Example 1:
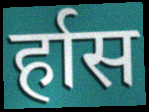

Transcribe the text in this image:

र्हास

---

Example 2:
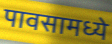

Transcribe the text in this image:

पावसामध्ये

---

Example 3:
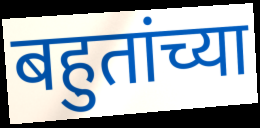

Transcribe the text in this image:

बहुतांच्या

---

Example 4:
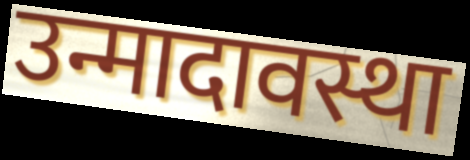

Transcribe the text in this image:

उन्मादावस्था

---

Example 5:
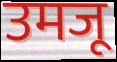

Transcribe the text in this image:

उमजू